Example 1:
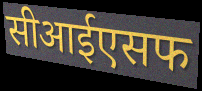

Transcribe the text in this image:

सीआईएसफ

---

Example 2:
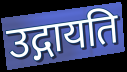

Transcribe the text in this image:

उद्गायति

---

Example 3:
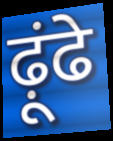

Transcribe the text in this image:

ढ़ूंढे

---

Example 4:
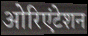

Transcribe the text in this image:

ओरिएंटेशन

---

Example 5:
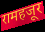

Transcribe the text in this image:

रामहजूर